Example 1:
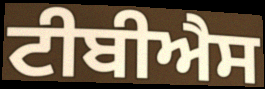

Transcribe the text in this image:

ਟੀਬੀਐਸ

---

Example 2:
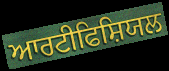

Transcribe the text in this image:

ਆਰਟੀਫਿਸ਼ਿਯਲ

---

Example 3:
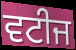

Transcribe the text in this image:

ਵਟੀਜ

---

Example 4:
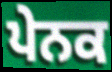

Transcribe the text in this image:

ਪੇਨਕ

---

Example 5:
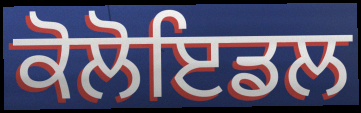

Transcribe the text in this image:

ਕੋਲੋਇਡਲ